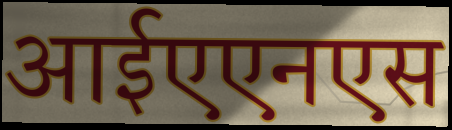
आईएएनएस